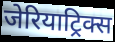
जेरियाट्रिक्स